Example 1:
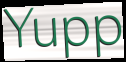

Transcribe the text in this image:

Yupp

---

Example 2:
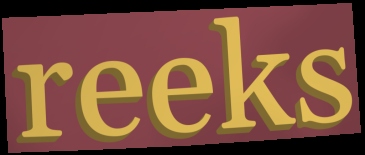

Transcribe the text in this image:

reeks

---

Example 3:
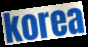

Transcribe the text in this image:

korea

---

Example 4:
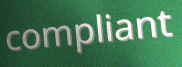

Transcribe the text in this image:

compliant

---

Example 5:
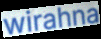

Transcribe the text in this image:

wirahna